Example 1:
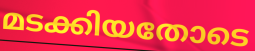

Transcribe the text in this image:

മടക്കിയതോടെ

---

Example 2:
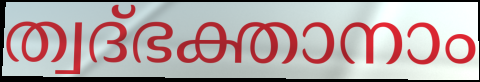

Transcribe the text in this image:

ത്വദ്ഭക്താനാം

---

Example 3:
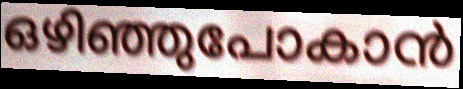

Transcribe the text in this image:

ഒഴിഞ്ഞുപോകാൻ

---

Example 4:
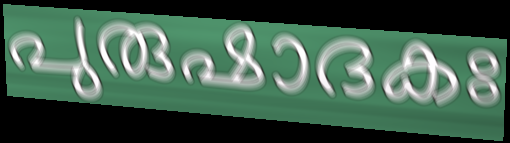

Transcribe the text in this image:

പുരുഷാദകഃ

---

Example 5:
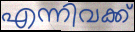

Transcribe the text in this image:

എന്നിവക്ക്